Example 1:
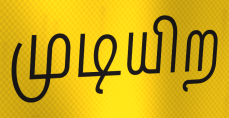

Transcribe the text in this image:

முடியிற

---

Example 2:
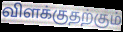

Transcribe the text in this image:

விளக்குதற்கும்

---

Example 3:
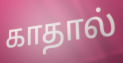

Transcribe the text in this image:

காதால்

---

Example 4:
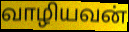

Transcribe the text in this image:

வாழியவன்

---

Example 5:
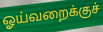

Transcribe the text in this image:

ஓய்வறைக்குச்